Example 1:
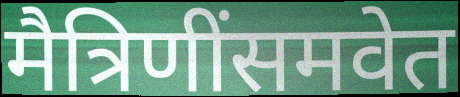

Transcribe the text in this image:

मैत्रिणींसमवेत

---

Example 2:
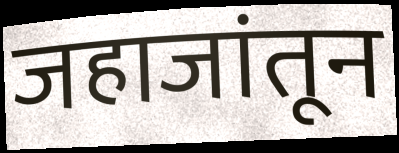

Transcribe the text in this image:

जहाजांतून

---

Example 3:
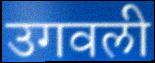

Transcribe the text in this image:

उगवली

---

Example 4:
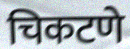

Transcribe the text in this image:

चिकटणे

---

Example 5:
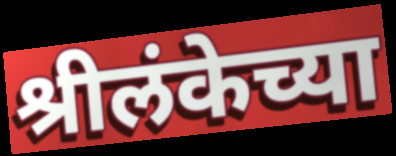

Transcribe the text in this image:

श्रीलंकेच्या